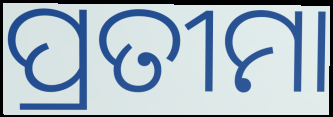
ପ୍ରତୀମା